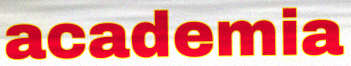
academia